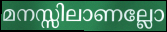
മനസ്സിലാണല്ലോ